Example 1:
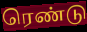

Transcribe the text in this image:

ரெண்டு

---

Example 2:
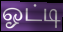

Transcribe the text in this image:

ஓட்டி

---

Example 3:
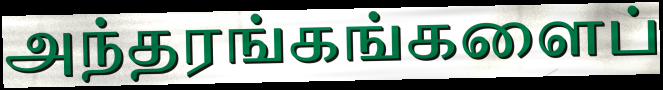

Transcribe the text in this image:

அந்தரங்கங்களைப்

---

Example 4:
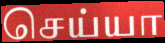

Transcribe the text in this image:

செய்யா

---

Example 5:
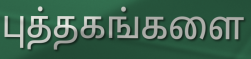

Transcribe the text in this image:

புத்தகங்களை